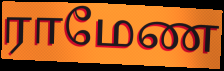
ராமேண